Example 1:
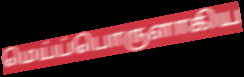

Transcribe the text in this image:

மெய்ப்பொருளாகிய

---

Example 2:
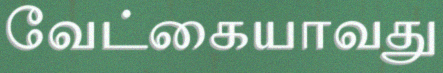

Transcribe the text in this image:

வேட்கையாவது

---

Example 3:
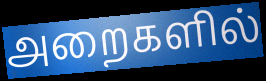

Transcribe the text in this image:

அறைகளில்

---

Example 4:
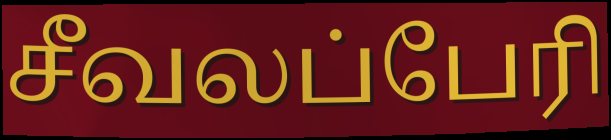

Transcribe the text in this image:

சீவலப்பேரி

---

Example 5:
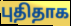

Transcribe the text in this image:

புதிதாக